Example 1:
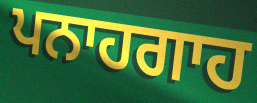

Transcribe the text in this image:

ਪਨਾਹਗਾਹ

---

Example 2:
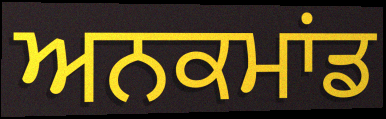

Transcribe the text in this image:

ਅਨਕਮਾਂਡ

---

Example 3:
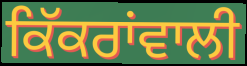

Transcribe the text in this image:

ਕਿੱਕਰਾਂਵਾਲੀ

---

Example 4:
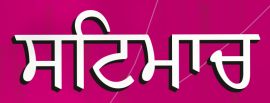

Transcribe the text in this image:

ਸਟਿਮਾਚ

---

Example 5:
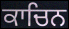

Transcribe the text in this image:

ਕਾਚਿਨ